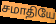
சமாதியே